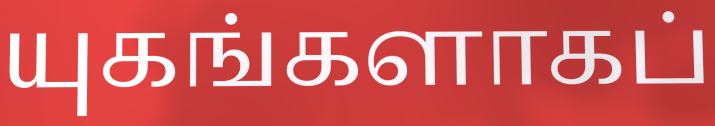
யுகங்களாகப்